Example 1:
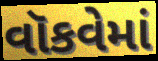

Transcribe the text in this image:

વૉકવેમાં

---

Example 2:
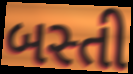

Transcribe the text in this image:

બસ્તી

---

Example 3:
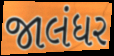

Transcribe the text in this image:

જાલંધર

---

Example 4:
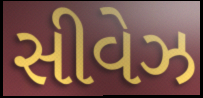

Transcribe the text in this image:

સીવેઝ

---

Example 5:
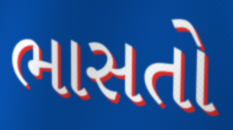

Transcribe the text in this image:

ભાસતો